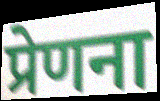
प्रेणना